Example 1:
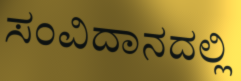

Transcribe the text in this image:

ಸಂವಿದಾನದಲ್ಲಿ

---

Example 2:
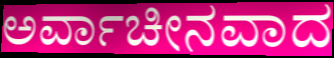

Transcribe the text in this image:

ಅರ್ವಾಚೀನವಾದ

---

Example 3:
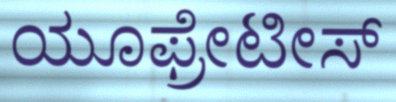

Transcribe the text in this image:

ಯೂಫ್ರೇಟೀಸ್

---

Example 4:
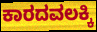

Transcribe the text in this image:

ಕಾರದವಲಕ್ಕಿ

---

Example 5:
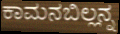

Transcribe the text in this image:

ಕಾಮನಬಿಲ್ಲನ್ನ